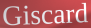
Giscard